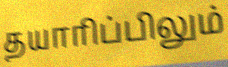
தயாரிப்பிலும்